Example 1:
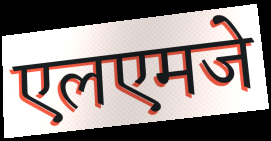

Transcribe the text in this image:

एलएमजे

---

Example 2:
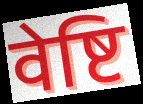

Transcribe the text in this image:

वेष्टि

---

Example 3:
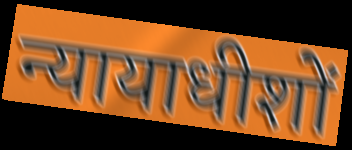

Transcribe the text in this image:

न्यायाधीशों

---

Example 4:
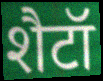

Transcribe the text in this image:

शैटॉ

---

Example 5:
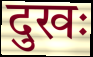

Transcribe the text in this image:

दुखः